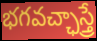
భగవచ్ఛాస్త్రే